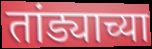
तांड्याच्या